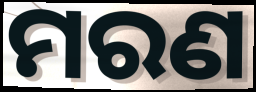
ମରଣ